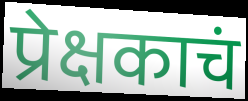
प्रेक्षकाचं